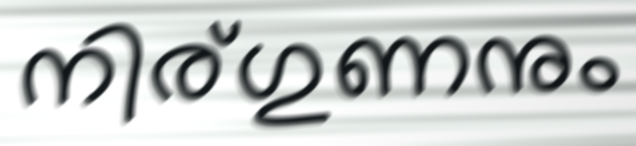
നിര്ഗുണനും